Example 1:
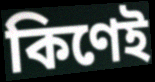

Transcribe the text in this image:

কিণেই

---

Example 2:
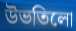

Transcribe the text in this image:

উভতিলো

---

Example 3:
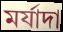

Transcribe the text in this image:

মৰ্যাদা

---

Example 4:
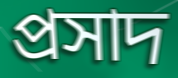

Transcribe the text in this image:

প্ৰসাদ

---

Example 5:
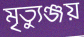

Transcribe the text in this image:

মৃত্যুঞ্জয়